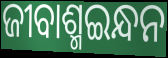
ଜୀବାଶ୍ମଇନ୍ଧନ